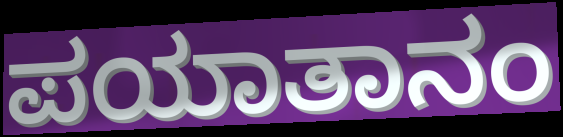
ಪಯಾತಾನಂ